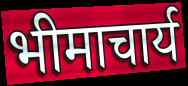
भीमाचार्य